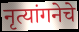
नृत्यांगनेचे